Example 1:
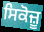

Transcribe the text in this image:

ਸਿਕੋਜ਼ੂ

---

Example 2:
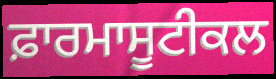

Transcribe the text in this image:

ਫ਼ਾਰਮਾਸੂਟੀਕਲ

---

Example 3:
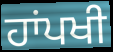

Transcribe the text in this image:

ਹਾਂਪਖੀ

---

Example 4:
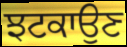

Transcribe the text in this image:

ਝਟਕਾਉਣ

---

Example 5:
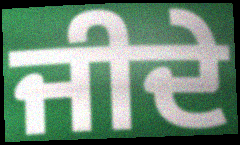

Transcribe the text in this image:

ਜੀਦੇ